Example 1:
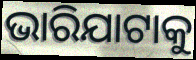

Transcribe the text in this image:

ଭାରିଯାଟାକୁ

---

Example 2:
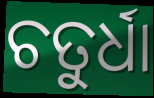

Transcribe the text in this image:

ଚତୁର୍ଧା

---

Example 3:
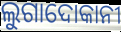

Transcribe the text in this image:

ଲୁଗାଦୋକାନୀ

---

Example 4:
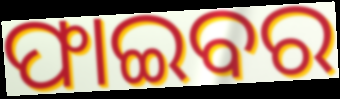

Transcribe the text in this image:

ଫାଇବର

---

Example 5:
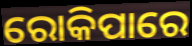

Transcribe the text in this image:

ରୋକିପାରେ